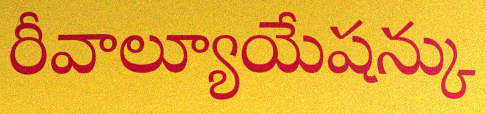
రీవాల్యూయేషన్కు